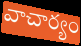
వాచార్యం